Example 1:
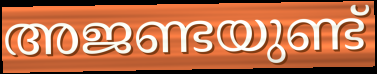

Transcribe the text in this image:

അജണ്ടയുണ്ട്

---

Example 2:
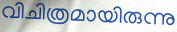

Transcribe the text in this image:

വിചിത്രമായിരുന്നു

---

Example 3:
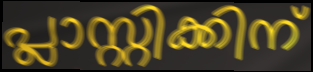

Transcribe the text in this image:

പ്ലാസ്റ്റിക്കിന്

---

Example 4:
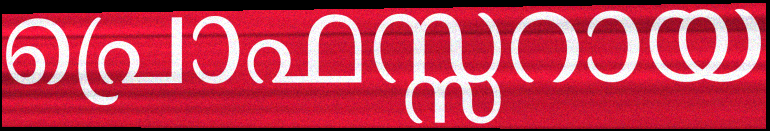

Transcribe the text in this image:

പ്രൊഫസ്സറായ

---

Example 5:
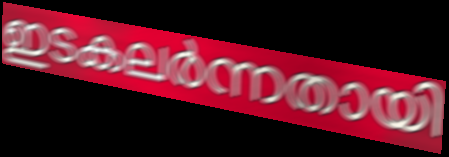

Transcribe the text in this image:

ഇടകലർന്നതായി